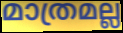
മാത്രമല്ല